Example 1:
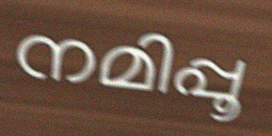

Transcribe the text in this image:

നമിപ്പൂ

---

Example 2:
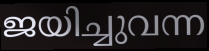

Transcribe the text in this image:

ജയിച്ചുവന്ന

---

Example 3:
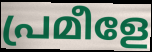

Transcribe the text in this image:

പ്രമീളേ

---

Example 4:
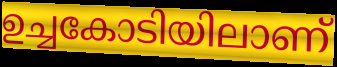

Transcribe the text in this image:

ഉച്ചകോടിയിലാണ്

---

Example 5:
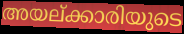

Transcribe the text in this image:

അയല്ക്കാരിയുടെ